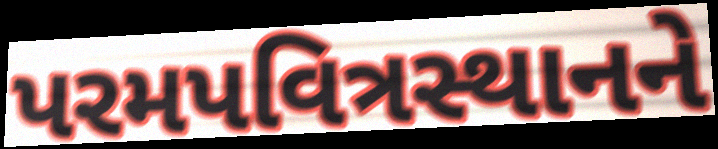
પરમપવિત્રસ્થાનને